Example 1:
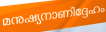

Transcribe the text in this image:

മനുഷ്യനാണിദ്ദേഹം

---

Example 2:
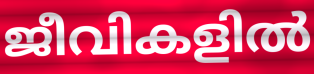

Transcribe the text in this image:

ജീവികളിൽ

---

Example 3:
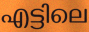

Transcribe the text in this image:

എട്ടിലെ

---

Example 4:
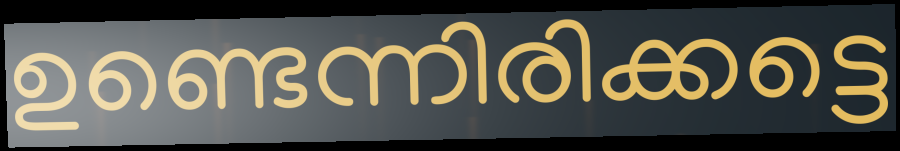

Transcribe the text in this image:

ഉണ്ടെന്നിരിക്കട്ടെ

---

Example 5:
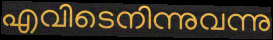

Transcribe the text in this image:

എവിടെനിന്നുവന്നു